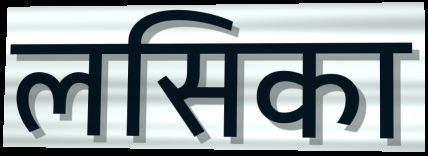
लसिका